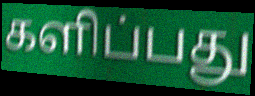
களிப்பது